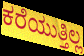
ಕರೆಯುತ್ತಿಲ್ಲ